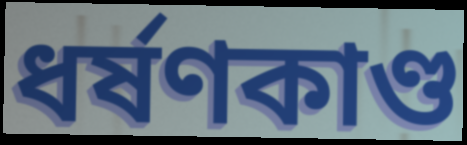
ধর্ষণকাণ্ড